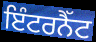
ਇੰਟਰਨੈੱਟ